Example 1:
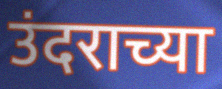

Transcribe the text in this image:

उंदराच्या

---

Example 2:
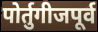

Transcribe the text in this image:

पोर्तुगीजपूर्व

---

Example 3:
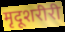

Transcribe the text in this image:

मृदूशरीरी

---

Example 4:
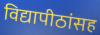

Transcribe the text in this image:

विद्यापीठांसह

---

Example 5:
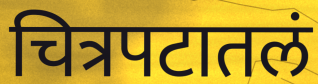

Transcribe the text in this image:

चित्रपटातलं